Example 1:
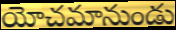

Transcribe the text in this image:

యోచమానుండు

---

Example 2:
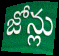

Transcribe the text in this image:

జోన్లు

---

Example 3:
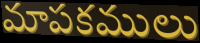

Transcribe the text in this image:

మాపకములు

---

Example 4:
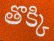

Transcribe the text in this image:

తొక్కి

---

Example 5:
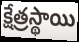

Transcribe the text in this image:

క్షేత్రస్థాయి